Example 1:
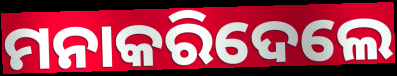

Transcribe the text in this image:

ମନାକରିଦେଲେ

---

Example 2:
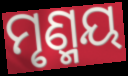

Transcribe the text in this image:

ମୃଣ୍ମୟ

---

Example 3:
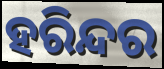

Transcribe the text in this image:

ହରିନ୍ଦର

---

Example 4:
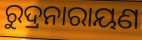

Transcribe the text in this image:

ରୁଦ୍ରନାରାୟଣ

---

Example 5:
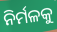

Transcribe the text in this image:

ନିର୍ମଳକୁ